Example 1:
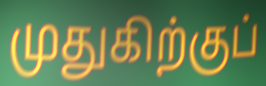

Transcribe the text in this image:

முதுகிற்குப்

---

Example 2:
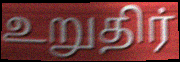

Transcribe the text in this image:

உறுதிர்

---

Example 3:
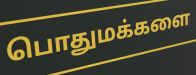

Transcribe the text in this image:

பொதுமக்களை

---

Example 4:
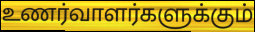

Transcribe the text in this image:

உணர்வாளர்களுக்கும்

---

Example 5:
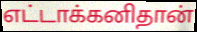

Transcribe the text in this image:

எட்டாக்கனிதான்